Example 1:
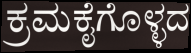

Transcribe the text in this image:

ಕ್ರಮಕೈಗೊಳ್ಳದ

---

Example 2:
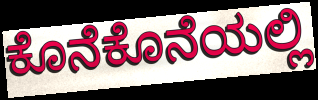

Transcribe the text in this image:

ಕೊನೆಕೊನೆಯಲ್ಲಿ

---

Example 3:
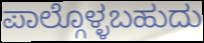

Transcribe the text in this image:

ಪಾಲ್ಗೊಳ್ಳಬಹುದು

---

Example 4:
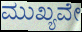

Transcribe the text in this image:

ಮುಖ್ಯವೇ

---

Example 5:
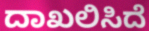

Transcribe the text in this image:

ದಾಖಲಿಸಿದೆ